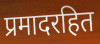
प्रमादरहित